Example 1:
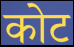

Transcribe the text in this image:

कोट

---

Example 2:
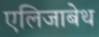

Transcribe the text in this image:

एलिजाबेथ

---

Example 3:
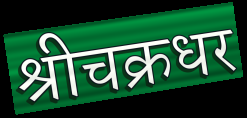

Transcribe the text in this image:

श्रीचक्रधर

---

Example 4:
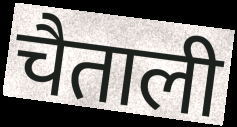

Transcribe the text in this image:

चैताली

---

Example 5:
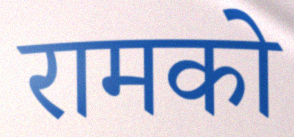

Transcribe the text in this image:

रामको